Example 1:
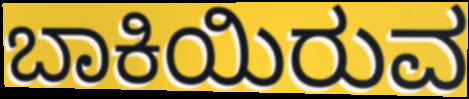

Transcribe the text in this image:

ಬಾಕಿಯಿರುವ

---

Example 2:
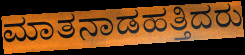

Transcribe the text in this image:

ಮಾತನಾಡಹತ್ತಿದರು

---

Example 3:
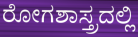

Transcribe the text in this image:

ರೋಗಶಾಸ್ತ್ರದಲ್ಲಿ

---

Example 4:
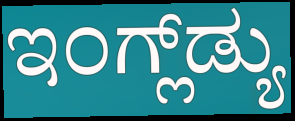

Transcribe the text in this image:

ಇಂಗ್ಲ್‌ಡ್ಯು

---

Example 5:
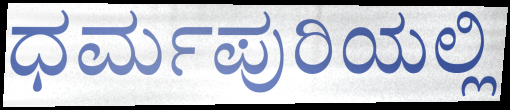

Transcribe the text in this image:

ಧರ್ಮಪುರಿಯಲ್ಲಿ